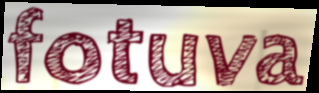
fotuva